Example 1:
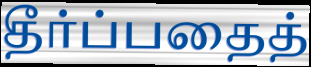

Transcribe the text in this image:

தீர்ப்பதைத்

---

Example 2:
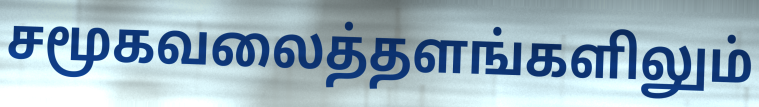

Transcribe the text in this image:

சமூகவலைத்தளங்களிலும்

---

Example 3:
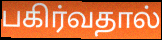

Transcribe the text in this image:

பகிர்வதால்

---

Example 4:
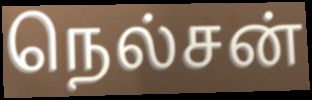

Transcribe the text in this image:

நெல்சன்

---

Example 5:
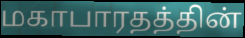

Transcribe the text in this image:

மகாபாரதத்தின்